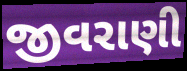
જીવરાણી